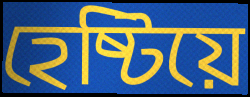
হেষ্টিয়ে